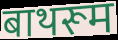
बाथरूम